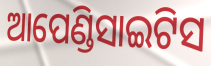
ଆପେଣ୍ଡିସାଇଟିସ